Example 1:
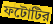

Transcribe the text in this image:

ফটোটির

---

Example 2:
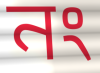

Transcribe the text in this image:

নং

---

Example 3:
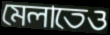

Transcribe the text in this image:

মেলাতেও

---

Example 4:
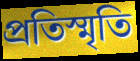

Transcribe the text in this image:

প্রতিস্মৃতি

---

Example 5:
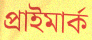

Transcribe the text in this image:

প্রাইমার্ক